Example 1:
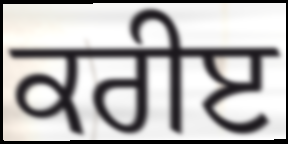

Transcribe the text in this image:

ਕਰੀੲ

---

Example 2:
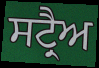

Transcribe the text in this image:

ਸਟ੍ਰੈਅ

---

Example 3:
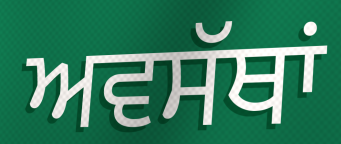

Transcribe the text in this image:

ਅਵਸੱਥਾਂ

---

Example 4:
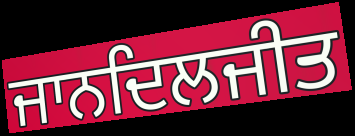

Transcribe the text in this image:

ਜਾਨਦਿਲਜੀਤ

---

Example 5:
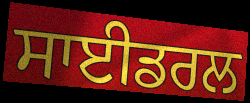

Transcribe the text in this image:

ਸਾਈਡਰਲ